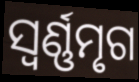
ସ୍ଵର୍ଣ୍ଣମୃଗ